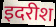
इदरीश